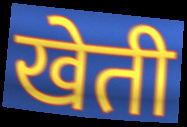
खेती